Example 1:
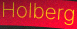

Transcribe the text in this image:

Holberg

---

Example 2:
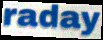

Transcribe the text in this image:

raday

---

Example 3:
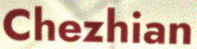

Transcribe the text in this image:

Chezhian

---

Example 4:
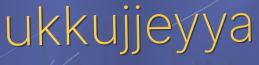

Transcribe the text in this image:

ukkujjeyya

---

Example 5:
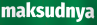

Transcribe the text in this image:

maksudnya